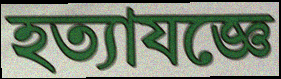
হত্যাযজ্ঞে